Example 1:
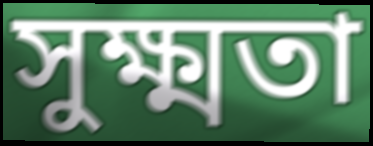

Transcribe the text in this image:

সুক্ষ্মতা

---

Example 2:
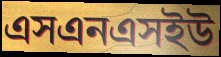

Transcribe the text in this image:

এসএনএসইউ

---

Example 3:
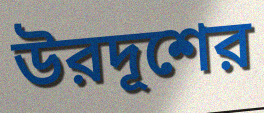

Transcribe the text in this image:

উরদূশের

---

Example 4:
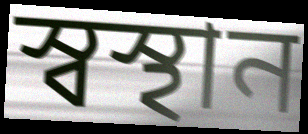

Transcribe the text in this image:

স্বস্থান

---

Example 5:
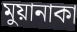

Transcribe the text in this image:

মুয়ানাকা